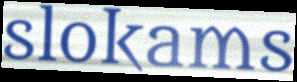
slokams